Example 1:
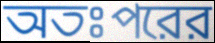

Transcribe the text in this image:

অতঃপরের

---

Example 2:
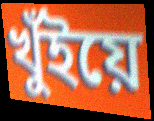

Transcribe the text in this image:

খুঁইয়ে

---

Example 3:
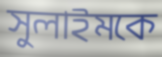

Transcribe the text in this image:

সুলাইমকে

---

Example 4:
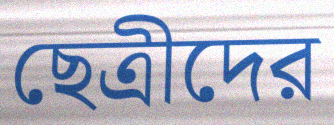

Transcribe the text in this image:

ছেত্রীদের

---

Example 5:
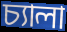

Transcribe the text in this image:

চ্যালা